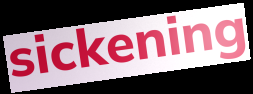
sickening